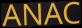
ANAC